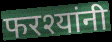
फरश्यांनी